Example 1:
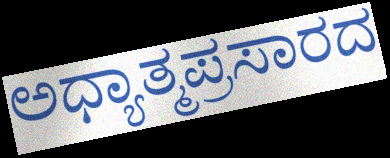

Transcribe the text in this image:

ಅಧ್ಯಾತ್ಮಪ್ರಸಾರದ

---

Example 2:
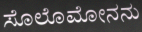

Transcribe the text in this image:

ಸೊಲೊಮೋನನು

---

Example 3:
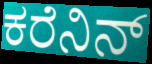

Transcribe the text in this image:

ಕರೆನಿನ್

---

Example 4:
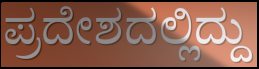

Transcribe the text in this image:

ಪ್ರದೇಶದಲ್ಲಿದ್ದು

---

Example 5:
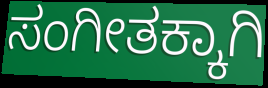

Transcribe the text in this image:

ಸಂಗೀತಕ್ಕಾಗಿ